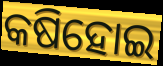
କଷିହୋଇ